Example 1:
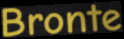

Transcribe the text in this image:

Bronte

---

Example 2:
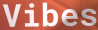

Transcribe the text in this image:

Vibes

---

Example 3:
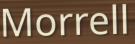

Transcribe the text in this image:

Morrell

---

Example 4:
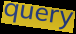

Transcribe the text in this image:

query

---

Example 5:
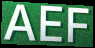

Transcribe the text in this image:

AEF